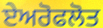
ਏਅਰੋਫਲੋਤ